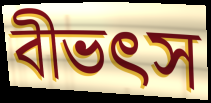
বীভৎস